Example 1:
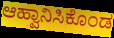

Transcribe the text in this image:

ಆಹ್ವಾನಿಸಿಕೊಂಡ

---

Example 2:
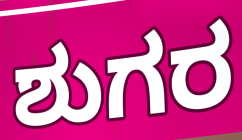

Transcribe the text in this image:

ಶುಗರ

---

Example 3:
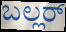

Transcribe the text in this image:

ಬಲ್ಲರ್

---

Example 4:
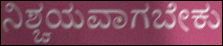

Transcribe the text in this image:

ನಿಶ್ಚಯವಾಗಬೇಕು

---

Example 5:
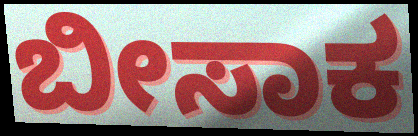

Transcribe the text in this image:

ಬೀಸಾಕ